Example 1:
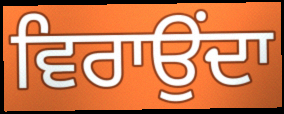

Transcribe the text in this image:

ਵਿਰਾਉਂਦਾ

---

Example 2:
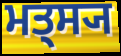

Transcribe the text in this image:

ਮਤ੍ਸ੍ਯ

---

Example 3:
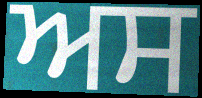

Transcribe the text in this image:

ਅਸ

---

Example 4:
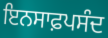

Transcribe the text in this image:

ਇਨਸਾਫ਼ਪਸੰਦ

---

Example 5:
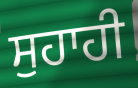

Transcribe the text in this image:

ਸੁਹਾਹੀ